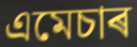
এমেচাৰ